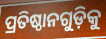
ପ୍ରତିଷ୍ଠାନଗୁଡ଼ିକୁ